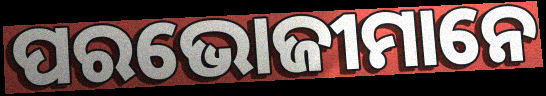
ପରଭୋଜୀମାନେ